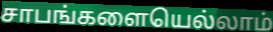
சாபங்களையெல்லாம்